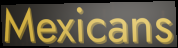
Mexicans